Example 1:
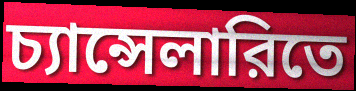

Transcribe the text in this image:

চ্যান্সেলারিতে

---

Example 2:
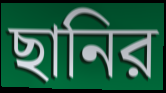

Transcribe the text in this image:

ছানির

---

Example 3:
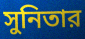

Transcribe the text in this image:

সুনিতার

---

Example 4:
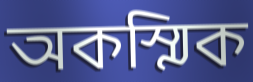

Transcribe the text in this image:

অকস্মিক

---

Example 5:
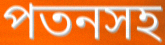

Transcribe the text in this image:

পতনসহ